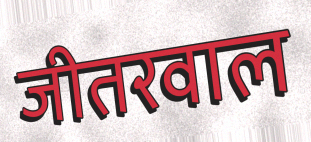
जीतरवाल